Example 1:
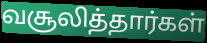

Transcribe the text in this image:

வசூலித்தார்கள்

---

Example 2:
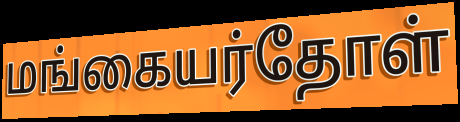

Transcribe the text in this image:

மங்கையர்தோள்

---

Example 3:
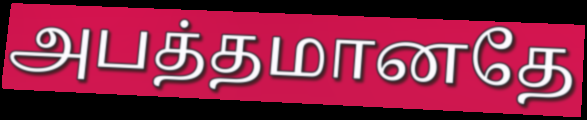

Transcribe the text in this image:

அபத்தமானதே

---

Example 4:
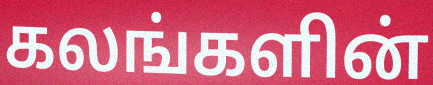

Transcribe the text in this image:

கலங்களின்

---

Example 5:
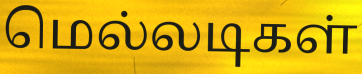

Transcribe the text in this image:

மெல்லடிகள்